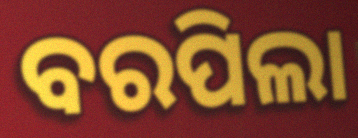
ବରପିଲା